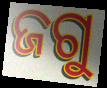
ଜଗୁ